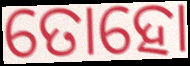
ତୋହୋ